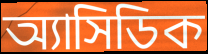
অ্যাসিডিক